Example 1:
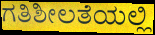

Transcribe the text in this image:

ಗತಿಶೀಲತೆಯಲ್ಲಿ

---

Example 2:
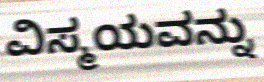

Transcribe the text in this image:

ವಿಸ್ಮಯವನ್ನು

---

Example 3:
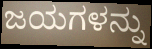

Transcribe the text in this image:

ಜಯಗಳನ್ನು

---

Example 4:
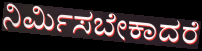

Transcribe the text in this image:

ನಿರ್ಮಿಸಬೇಕಾದರೆ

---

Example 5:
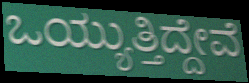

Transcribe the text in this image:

ಒಯ್ಯುತ್ತಿದ್ದೇವೆ